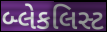
બ્લેકલિસ્ટ